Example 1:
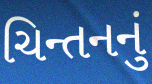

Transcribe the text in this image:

ચિન્તનનું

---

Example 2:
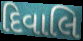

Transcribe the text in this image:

દિવાલિ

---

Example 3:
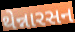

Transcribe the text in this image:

થેન્નારસન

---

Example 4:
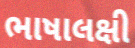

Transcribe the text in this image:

ભાષાલક્ષી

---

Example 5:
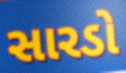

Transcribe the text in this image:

સારડો